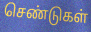
செண்டுகள்